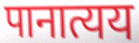
पानात्यय